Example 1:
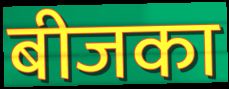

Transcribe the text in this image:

बीजका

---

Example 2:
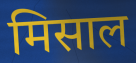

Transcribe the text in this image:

मिसाल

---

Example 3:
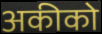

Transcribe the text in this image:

अकीको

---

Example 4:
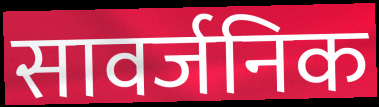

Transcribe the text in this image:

सावर्जनिक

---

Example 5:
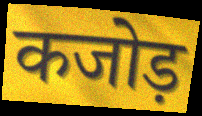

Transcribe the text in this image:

कजोड़